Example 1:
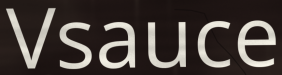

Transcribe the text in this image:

Vsauce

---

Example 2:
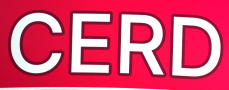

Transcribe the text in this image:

CERD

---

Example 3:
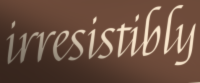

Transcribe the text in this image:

irresistibly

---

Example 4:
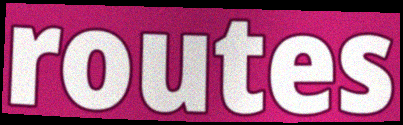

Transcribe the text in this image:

routes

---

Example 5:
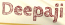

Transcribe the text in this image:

Deepaji